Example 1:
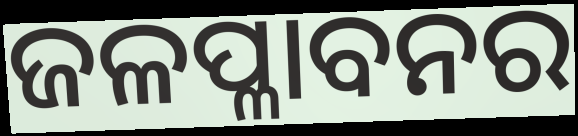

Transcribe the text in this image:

ଜଳପ୍ଳାବନର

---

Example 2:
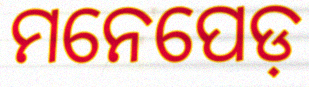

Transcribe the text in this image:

ମନେପେଡ଼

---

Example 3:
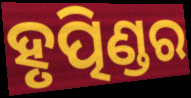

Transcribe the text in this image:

ହୃତ୍ପିଣ୍ଡର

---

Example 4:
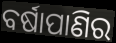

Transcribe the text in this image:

ବର୍ଷାପାଣିର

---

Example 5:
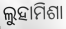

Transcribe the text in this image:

ଲୁହାମିଶା